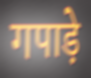
गपाड़े